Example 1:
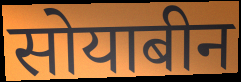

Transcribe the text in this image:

सोयाबीन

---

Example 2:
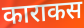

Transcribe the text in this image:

काराकस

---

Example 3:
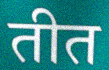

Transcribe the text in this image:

तीत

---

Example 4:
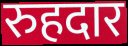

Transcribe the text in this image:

रुहदार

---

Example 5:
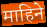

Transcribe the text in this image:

माहिने